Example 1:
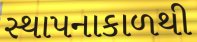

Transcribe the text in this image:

સ્થાપનાકાળથી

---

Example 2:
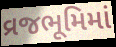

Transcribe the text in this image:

વ્રજભૂમિમાં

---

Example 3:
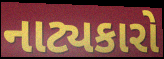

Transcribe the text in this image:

નાટ્યકારો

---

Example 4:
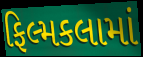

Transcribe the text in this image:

ફિલ્મકલામાં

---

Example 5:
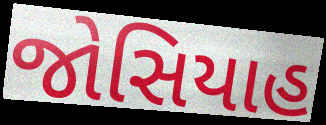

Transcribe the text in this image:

જોસિયાહ